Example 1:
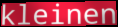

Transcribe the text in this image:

kleinen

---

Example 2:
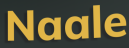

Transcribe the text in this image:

Naale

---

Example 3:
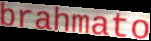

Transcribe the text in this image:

brahmato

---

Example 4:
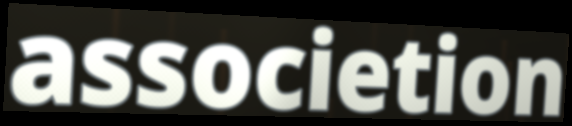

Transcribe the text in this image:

associetion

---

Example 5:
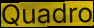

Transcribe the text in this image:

Quadro